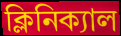
ক্লিনিক্যাল